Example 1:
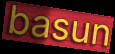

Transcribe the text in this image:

basun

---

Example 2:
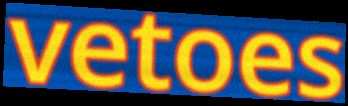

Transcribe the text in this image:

vetoes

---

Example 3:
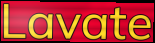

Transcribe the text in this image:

Lavate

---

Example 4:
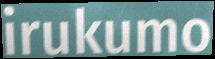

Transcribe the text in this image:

irukumo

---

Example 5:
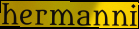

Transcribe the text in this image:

hermanni